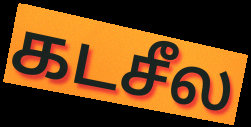
கடசீல